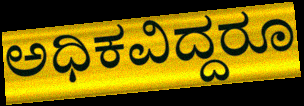
ಅಧಿಕವಿದ್ದರೂ